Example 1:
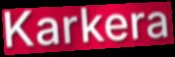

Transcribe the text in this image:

Karkera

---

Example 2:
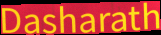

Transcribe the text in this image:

Dasharath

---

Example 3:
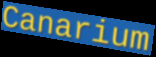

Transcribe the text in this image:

Canarium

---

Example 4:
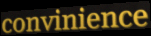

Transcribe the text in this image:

convinience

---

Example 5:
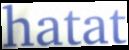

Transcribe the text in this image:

hatat